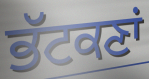
ਭੱਟਕਣਾਂ